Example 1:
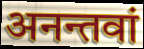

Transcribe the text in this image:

अनन्तवां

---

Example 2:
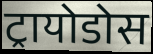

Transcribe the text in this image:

ट्रायोडोस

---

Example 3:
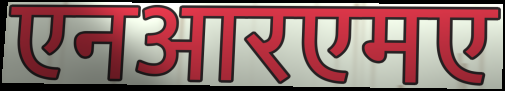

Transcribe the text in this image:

एनआरएमए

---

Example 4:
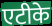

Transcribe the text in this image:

एटीके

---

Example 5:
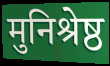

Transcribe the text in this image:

मुनिश्रेष्ठ